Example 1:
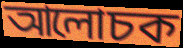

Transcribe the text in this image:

আলোচক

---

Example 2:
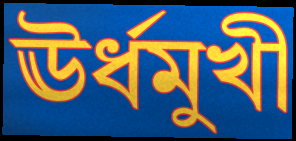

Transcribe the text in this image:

ঊৰ্ধমুখী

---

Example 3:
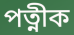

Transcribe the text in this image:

পত্নীক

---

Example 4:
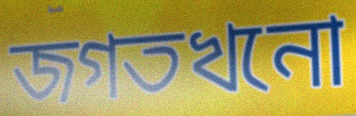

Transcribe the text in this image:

জগতখনো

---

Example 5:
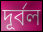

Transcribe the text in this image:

দূৰ্বল